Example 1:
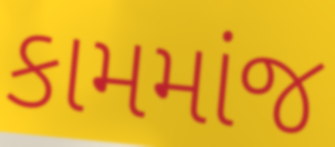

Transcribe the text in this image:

કામમાંજ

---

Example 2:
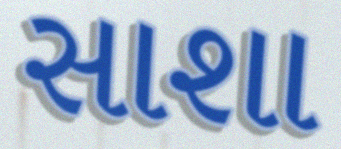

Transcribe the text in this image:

સાશા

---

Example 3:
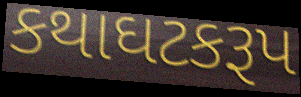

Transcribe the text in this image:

કથાઘટકરૂપ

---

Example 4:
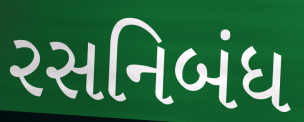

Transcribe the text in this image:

રસનિબંધ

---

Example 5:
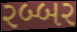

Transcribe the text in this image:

રબ્બર